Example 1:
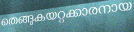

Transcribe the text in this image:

തെങ്ങുകയറ്റക്കാരനായ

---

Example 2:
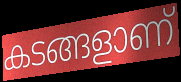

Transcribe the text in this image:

കടങ്ങളാണ്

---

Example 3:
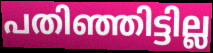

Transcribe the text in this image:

പതിഞ്ഞിട്ടില്ല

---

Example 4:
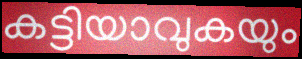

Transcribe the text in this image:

കട്ടിയാവുകയും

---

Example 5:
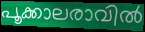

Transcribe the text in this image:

പൂക്കാലരാവിൽ